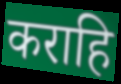
कराहि